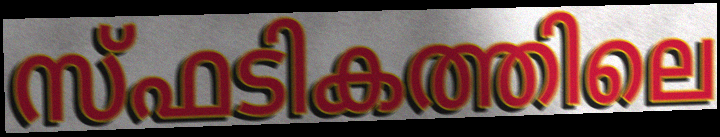
സ്ഫടികത്തിലെ